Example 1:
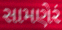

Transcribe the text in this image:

સામણેરં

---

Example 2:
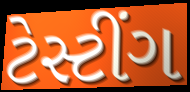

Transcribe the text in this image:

ટેસ્ટીંગ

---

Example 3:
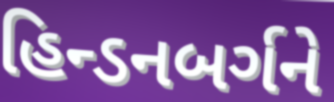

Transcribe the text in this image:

હિન્ડનબર્ગને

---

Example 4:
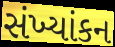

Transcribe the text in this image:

સંખ્યાંકન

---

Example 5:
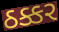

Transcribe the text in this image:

ઠક્કર